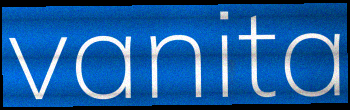
vanita